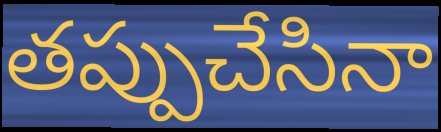
తప్పుచేసినా